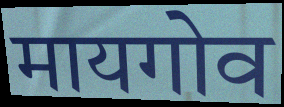
मायगोव